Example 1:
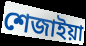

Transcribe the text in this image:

শেজাইয়া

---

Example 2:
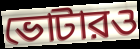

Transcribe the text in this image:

ভোটারও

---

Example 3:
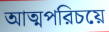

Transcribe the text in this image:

আত্মপরিচয়ে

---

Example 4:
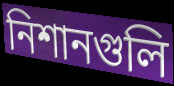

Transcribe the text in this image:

নিশানগুলি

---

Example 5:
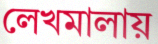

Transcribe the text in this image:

লেখমালায়